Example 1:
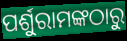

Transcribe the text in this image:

ପର୍ଶୁରାମଙ୍କଠାରୁ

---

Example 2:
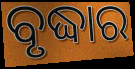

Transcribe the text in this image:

ବୃଦ୍ଧାର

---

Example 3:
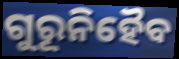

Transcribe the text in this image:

ଗୁରୂନିହୈବ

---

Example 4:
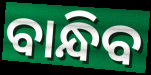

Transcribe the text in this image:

ବାନ୍ଧିବ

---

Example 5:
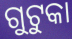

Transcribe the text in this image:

ଗୁଟୁକା